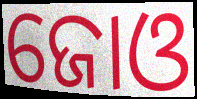
ଜୋଓ